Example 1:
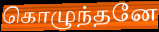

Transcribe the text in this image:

கொழுந்தனே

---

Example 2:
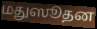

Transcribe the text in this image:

மதுஸூதன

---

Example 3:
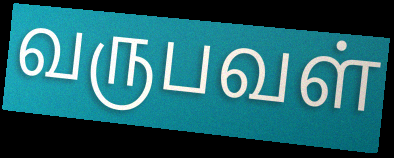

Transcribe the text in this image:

வருபவள்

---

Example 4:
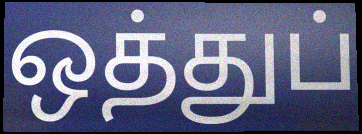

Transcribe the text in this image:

ஒத்துப்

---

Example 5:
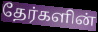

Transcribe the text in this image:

தேர்களின்